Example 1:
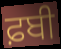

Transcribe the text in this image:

ਫ਼ਬੀ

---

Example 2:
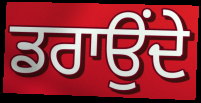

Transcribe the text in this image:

ਡਰਾਉਂਦੇ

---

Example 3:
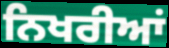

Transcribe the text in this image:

ਨਿਖਰੀਆਂ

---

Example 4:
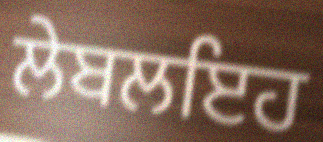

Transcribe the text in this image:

ਲੇਬਲਇਹ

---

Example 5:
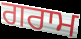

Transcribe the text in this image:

ਗਰਾਮ